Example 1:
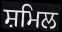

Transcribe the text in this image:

ਸ਼ਮਿਲ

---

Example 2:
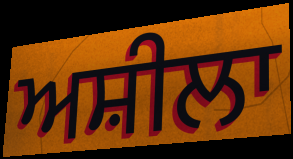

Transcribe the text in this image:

ਅਸ਼ੀਲਾ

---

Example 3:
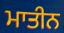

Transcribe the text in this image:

ਮਾਤੀਨ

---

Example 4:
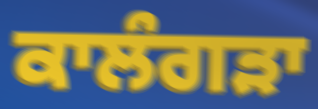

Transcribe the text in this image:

ਕਾਲੰਗੜਾ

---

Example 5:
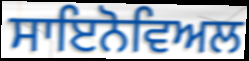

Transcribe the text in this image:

ਸਾਇਨੋਵਿਅਲ